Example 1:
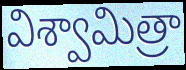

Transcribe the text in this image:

విశ్వామిత్రా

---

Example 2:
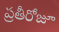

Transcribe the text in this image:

ప్రతీరోజూ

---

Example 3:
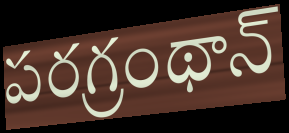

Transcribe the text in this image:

పరగ్రంథాన్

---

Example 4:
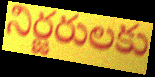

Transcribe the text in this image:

నిర్జరులకు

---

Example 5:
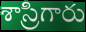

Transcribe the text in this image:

శాస్రిగారు